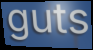
guts